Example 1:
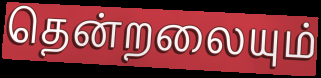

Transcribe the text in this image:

தென்றலையும்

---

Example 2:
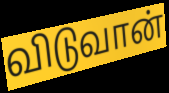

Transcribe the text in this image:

விடுவான்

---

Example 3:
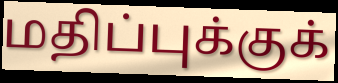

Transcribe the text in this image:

மதிப்புக்குக்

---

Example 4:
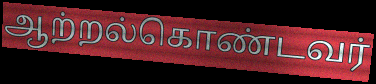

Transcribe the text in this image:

ஆற்றல்கொண்டவர்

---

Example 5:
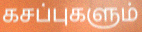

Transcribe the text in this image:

கசப்புகளும்